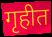
गृहीत